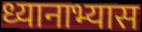
ध्यानाभ्यास